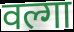
वल्गा